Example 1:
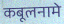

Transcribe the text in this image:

कबूलनामे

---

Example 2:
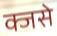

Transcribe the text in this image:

क्जसे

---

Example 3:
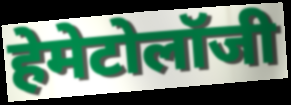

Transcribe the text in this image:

हेमेटोलॉजी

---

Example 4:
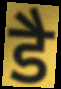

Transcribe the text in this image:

डै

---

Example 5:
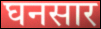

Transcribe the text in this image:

घनसार